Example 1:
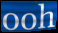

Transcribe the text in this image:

ooh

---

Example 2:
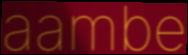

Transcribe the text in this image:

aambe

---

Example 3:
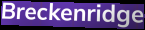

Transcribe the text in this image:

Breckenridge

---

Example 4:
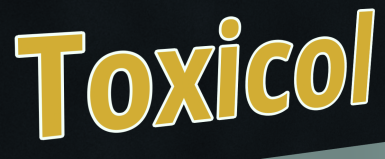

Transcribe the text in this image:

Toxicol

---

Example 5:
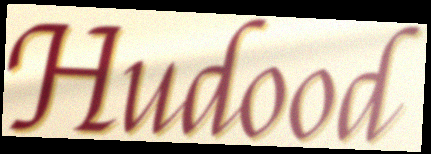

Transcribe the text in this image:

Hudood